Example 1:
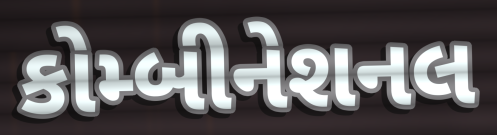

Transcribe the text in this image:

કોમ્બીનેશનલ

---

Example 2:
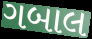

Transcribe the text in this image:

ગબાલ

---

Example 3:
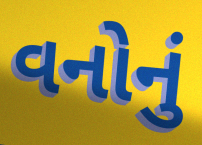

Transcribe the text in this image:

વનોનું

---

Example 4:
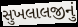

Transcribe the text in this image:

સુખલાલજીનું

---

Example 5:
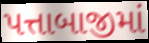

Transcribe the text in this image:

પત્તાબાજીમાં